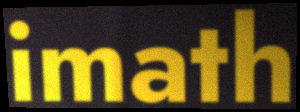
imath